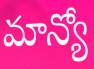
మాన్యో